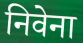
निवेना